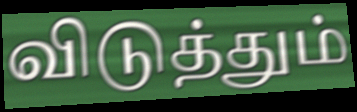
விடுத்தும்